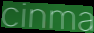
cinma